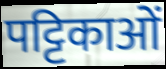
पट्टिकाओं